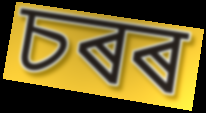
চৰৰ